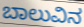
ಬಾಲುವಿನ